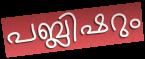
പബ്ലിഷറും